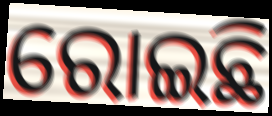
ରୋଇଛି